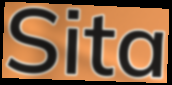
Sita